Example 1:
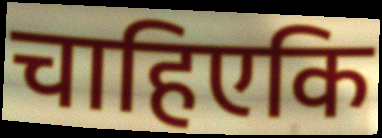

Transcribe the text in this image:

चाहिएकि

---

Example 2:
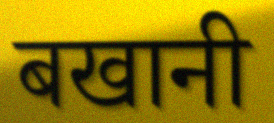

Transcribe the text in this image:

बखानी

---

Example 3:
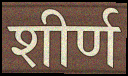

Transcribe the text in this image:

शीर्ण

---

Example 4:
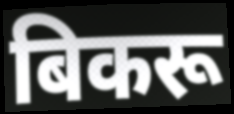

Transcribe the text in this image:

बिकरू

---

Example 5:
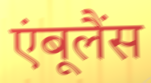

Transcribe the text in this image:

एंबूलैंस